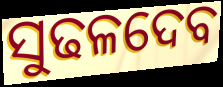
ସୁଢଳଦେବ